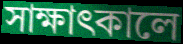
সাক্ষাৎকালে